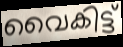
വൈകിട്ട്